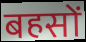
बहसों